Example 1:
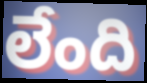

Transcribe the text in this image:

లేంది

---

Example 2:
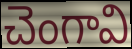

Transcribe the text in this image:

చెంగావి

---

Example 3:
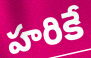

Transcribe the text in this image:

హరికే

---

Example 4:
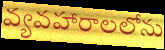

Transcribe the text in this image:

వ్యవహారాలలోను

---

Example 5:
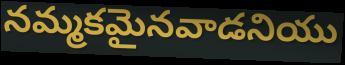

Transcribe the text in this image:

నమ్మకమైనవాడనియు